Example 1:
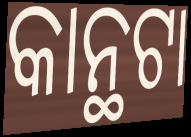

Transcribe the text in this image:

କାନ୍ଥଟା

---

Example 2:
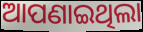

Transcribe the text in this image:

ଆପଣାଇଥିଲା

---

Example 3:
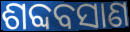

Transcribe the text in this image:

ଶବ୍ଦବସାଣ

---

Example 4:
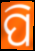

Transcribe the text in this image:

ପି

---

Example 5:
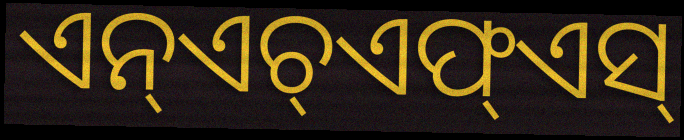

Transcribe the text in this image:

ଏନ୍ଏଚ୍ଏଫ୍ଏସ୍